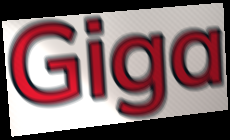
Giga